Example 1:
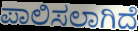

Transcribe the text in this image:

ಪಾಲಿಸಲಾಗಿದೆ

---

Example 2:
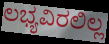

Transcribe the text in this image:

ಲಭ್ಯವಿರಲಿಲ್ಲ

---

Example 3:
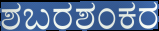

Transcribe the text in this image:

ಶಬರಶಂಕರ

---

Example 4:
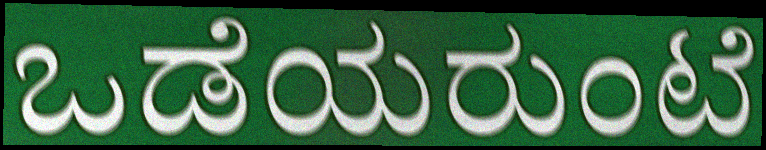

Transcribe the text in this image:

ಒಡೆಯರುಂಟೆ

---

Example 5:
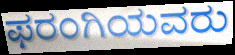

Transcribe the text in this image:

ಫರಂಗಿಯವರು